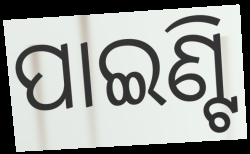
ପାଇଣ୍ଟି